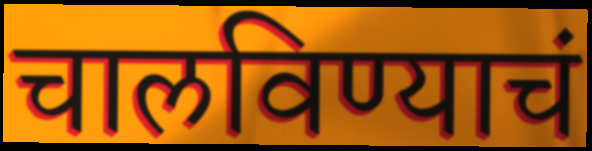
चालविण्याचं